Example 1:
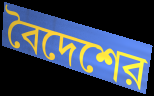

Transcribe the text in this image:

বৈদেশের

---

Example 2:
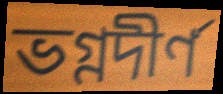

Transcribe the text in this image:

ভগ্নদীর্ণ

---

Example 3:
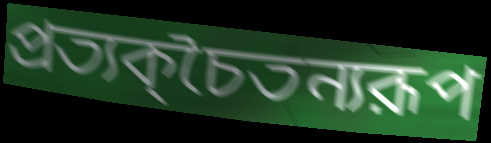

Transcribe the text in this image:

প্রত্যক্‌চৈতন্যরূপ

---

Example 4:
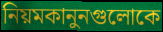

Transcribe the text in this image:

নিয়মকানুনগুলোকে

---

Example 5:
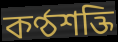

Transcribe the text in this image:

কণ্ঠশক্তি